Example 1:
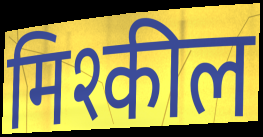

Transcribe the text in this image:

मिश्कील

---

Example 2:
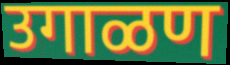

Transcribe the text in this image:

उगाळण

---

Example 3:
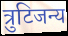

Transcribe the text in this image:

त्रुटिजन्य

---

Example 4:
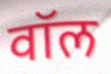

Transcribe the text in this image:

वॉल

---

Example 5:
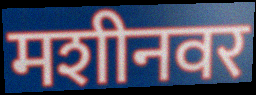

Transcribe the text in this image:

मशीनवर